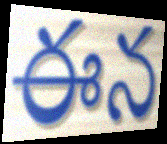
ఈన